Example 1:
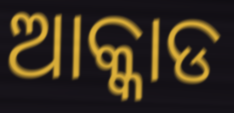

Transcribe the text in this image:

ଆକ୍କାଡ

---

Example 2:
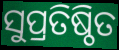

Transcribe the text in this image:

ସୁପ୍ରତିଷ୍ଠିତ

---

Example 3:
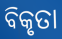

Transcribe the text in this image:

ବିକୃତା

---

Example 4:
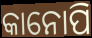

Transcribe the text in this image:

କାନୋପି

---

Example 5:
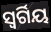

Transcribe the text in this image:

ସ୍ୱର୍ଗିୟ